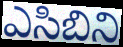
ఎసిబిని